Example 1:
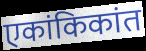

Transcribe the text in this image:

एकांकिकांत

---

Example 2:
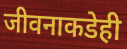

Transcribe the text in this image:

जीवनाकडेही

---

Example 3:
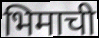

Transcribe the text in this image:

भिमाची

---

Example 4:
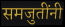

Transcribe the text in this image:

समजुतींनी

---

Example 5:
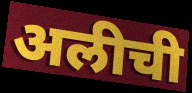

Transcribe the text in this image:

अलीची